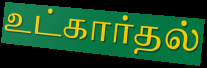
உட்கார்தல்